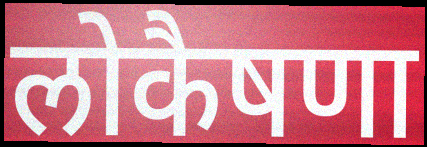
लोकैषणा